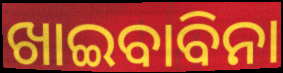
ଖାଇବାବିନା